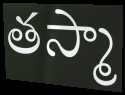
తస్మా